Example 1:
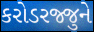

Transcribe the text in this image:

કરોડરજ્જુને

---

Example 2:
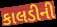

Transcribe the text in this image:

કાલડીની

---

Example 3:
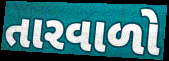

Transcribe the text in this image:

તારવાળો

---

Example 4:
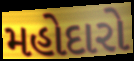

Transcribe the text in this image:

મહોદારો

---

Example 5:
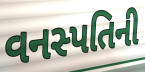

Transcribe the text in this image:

વનસ્પતિની